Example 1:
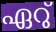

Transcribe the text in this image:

ഏറു്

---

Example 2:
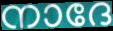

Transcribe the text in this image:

നാദേ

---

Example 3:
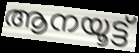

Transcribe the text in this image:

ആനയൂട്ട്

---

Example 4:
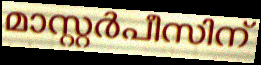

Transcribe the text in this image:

മാസ്റ്റർപീസിന്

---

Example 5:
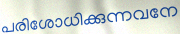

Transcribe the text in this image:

പരിശോധിക്കുന്നവനേ